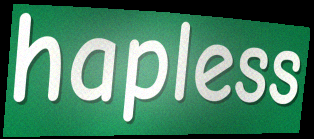
hapless